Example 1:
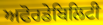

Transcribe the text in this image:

ਅਫੋਰਡੇਬਿਲਿਟੀ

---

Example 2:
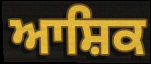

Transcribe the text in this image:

ਆਸ਼ਿਕ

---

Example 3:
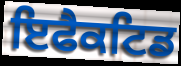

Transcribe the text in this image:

ਇਫੈਕਟਿਡ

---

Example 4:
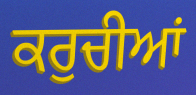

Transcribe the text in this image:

ਕਰੁਚੀਆਂ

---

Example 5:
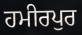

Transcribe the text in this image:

ਹਮੀਰਪੁਰ